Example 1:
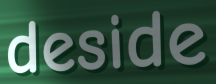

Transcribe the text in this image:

deside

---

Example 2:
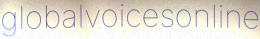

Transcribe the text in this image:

globalvoicesonline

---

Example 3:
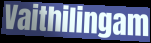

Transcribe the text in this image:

Vaithilingam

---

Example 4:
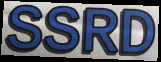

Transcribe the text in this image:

SSRD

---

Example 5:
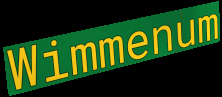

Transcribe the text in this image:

Wimmenum